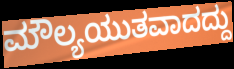
ಮೌಲ್ಯಯುತವಾದದ್ದು